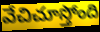
వేచిచూస్తోంది